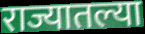
राज्यातल्या